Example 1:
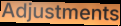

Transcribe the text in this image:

Adjustments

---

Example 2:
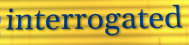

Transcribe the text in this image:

interrogated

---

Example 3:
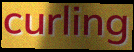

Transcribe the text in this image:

curling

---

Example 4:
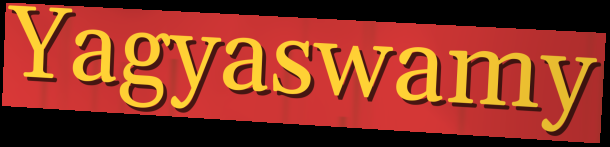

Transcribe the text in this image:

Yagyaswamy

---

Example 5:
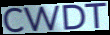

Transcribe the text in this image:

CWDT